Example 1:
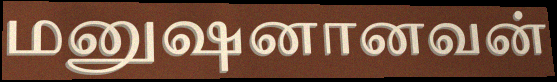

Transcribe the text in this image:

மனுஷனானவன்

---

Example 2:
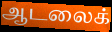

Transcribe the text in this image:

ஆடலைக்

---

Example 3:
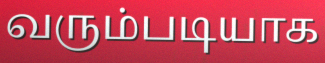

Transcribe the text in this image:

வரும்படியாக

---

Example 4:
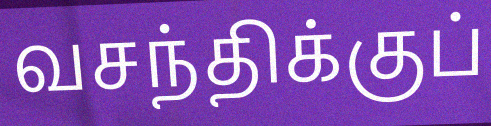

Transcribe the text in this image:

வசந்திக்குப்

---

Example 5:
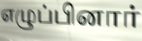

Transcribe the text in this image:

எழுப்பினார்